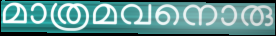
മാത്രമവനൊരു